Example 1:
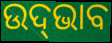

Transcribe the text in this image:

ଉଦ୍‍ଭାବ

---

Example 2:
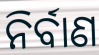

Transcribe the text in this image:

ନିର୍ବାଣ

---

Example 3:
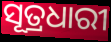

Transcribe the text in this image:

ସୂତ୍ରଧାରୀ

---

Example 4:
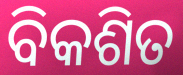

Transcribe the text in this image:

ବିକଶିତ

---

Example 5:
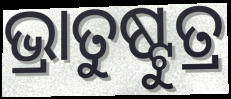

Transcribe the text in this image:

ଭ୍ରାତୁଷ୍ଟୁତ୍ର